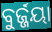
ବୁର୍ଜ୍ଜୟା